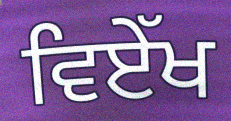
ਵਿਏੱਖ